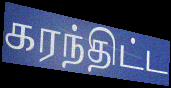
கரந்திட்ட